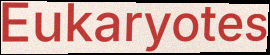
Eukaryotes